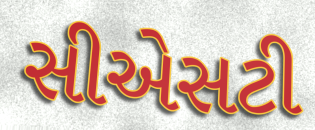
સીએસટી